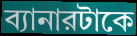
ব্যানারটাকে